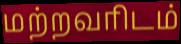
மற்றவரிடம்